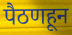
पैठणहून